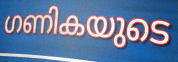
ഗണികയുടെ